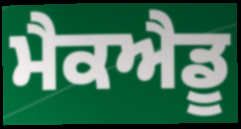
ਮੈਕਐਡੂ